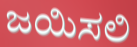
ಜಯಿಸಲಿ